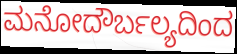
ಮನೋದೌರ್ಬಲ್ಯದಿಂದ